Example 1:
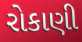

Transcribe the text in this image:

રોકાણી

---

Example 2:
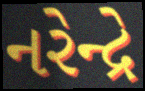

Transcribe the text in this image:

નરેન્દ્રે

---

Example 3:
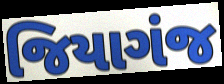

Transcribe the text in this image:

જિયાગંજ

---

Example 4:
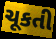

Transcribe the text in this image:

ચૂકતી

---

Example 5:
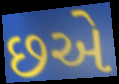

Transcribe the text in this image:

છએ